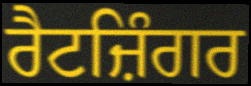
ਰੈਟਜ਼ਿੰਗਰ